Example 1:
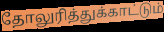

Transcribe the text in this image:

தோலுரித்துக்காட்டும்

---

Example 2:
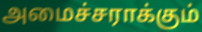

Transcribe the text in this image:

அமைச்சராக்கும்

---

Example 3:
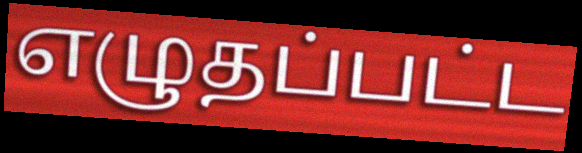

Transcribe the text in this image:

எழுதப்பட்ட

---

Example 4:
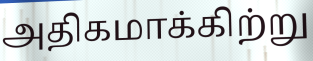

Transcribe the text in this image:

அதிகமாக்கிற்று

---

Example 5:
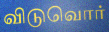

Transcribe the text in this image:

விடுவொர்